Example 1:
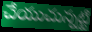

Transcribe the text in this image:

చేయుచున్నట్టి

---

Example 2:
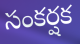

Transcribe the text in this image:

సంకర్షక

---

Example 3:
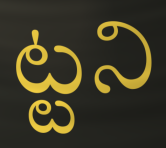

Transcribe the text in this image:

ట్టని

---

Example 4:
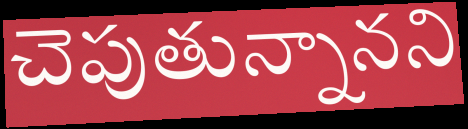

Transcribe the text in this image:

చెపుతున్నానని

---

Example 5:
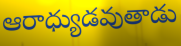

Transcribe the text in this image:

ఆరాధ్యుడవుతాడు